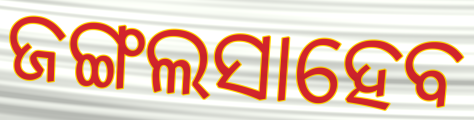
ଜଙ୍ଗଲସାହେବ